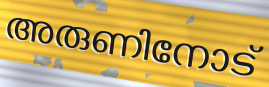
അരുണിനോട്